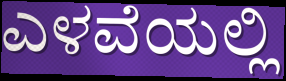
ಎಳವೆಯಲ್ಲಿ